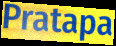
Pratapa